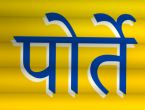
पोर्ते